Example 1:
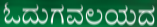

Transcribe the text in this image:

ಓದುಗವಲಯದ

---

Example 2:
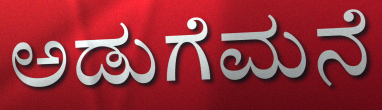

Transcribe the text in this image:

ಅಡುಗೆಮನೆ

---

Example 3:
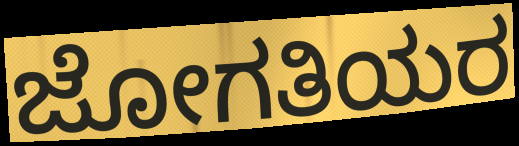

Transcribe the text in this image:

ಜೋಗತಿಯರ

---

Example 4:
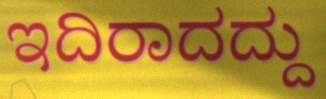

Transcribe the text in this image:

ಇದಿರಾದದ್ದು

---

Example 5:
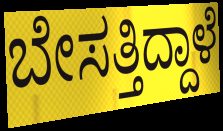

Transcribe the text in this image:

ಬೇಸತ್ತಿದ್ದಾಳೆ